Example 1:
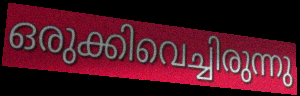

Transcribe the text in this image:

ഒരുക്കിവെച്ചിരുന്നു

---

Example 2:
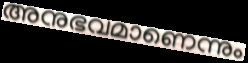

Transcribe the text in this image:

അനുഭവമാണെന്നും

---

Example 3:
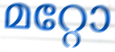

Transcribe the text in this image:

മറ്റോ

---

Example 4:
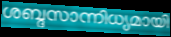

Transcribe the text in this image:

ശബ്ദസാന്നിധ്യമായി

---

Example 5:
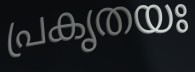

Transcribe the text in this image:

പ്രകൃതയഃ